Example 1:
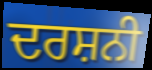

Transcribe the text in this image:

ਦਰਸ਼ਨੀ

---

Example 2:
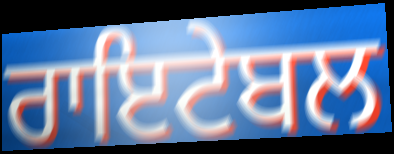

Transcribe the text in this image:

ਰਾਇਟੇਬਲ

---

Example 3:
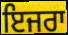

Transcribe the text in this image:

ਇਜਰਾ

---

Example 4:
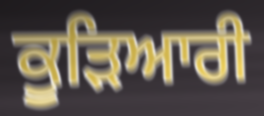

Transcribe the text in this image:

ਕੂੜਿਆਰੀ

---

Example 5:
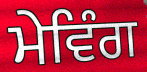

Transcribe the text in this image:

ਮੇਵਿੰਗ